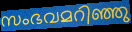
സംഭവമറിഞ്ഞു